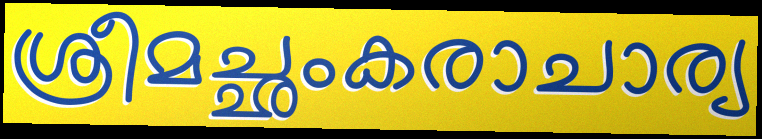
ശ്രീമച്ഛംകരാചാര്യ